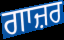
ਗਾਜ਼ਰ